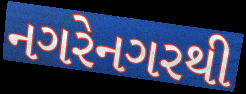
નગરેનગરથી